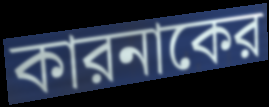
কারনাকের